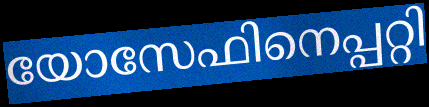
യോസേഫിനെപ്പറ്റി